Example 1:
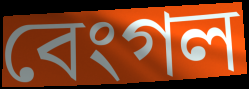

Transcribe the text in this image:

বেংগল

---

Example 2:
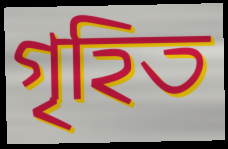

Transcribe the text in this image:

গৃহিত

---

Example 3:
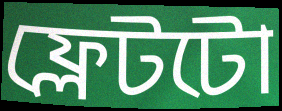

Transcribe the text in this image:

ফ্লেটটো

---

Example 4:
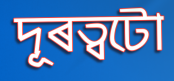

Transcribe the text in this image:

দূৰত্বটো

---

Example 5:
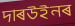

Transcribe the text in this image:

দাৰউইনৰ